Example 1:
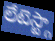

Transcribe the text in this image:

లేటెస్ట్గా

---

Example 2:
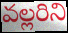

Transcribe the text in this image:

వల్లరిని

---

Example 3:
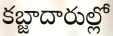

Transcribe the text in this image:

కబ్జాదారుల్లో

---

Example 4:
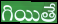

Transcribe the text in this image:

గియితే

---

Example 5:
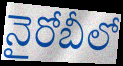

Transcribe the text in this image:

నైరోబీలో